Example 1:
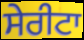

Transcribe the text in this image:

ਸੇਰੀਟਾ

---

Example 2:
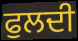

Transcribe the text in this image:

ਫੁਲਦੀ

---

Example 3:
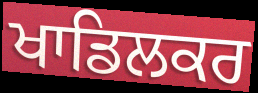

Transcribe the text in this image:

ਖਾਡਿਲਕਰ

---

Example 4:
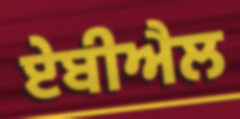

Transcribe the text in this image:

ਏਬੀਐਲ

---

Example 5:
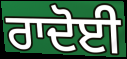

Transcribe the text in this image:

ਰਾਦੋਈ